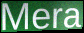
Mera